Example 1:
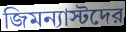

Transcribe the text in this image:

জিমন্যাস্টদের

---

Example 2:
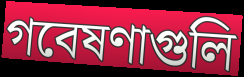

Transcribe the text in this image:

গবেষণাগুলি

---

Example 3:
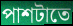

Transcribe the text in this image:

পাশটাতে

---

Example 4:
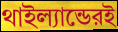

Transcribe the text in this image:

থাইল্যান্ডেরই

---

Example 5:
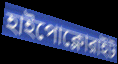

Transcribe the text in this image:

হাইপোক্লোরাইট